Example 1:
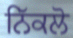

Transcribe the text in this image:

ਨਿੱਕਲੋ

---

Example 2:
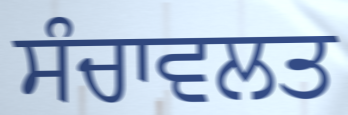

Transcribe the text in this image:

ਸੰਚਾਵਲਤ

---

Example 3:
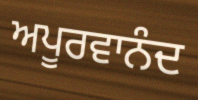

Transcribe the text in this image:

ਅਪੂਰਵਾਨੰਦ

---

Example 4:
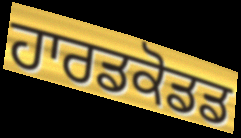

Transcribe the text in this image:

ਹਾਰਡਕੋਡਡ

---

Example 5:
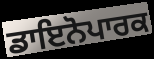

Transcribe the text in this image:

ਡਾਇਨੋਪਾਰਕ